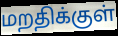
மறதிக்குள்